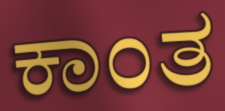
ಕಾಂತ